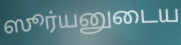
ஸூர்யனுடைய